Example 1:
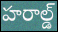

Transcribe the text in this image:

హరాల్డ్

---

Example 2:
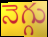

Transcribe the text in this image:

నెగ్గు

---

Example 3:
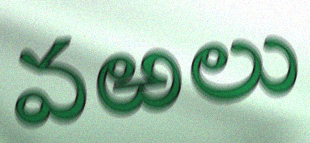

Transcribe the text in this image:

వఱలు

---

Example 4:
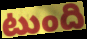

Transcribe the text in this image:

టుంది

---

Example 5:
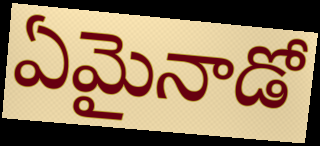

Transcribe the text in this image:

ఏమైనాడో